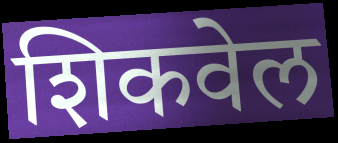
शिकवेल